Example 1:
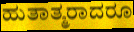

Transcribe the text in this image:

ಹುತಾತ್ಮರಾದರೂ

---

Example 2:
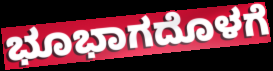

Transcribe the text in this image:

ಭೂಭಾಗದೊಳಗೆ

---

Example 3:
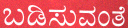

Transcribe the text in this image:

ಬಡಿಸುವಂತೆ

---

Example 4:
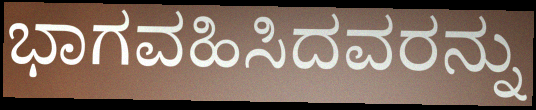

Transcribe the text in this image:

ಭಾಗವಹಿಸಿದವರನ್ನು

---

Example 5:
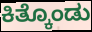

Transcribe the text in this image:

ಕಿತ್ಕೊಂಡು